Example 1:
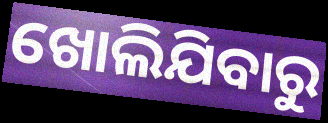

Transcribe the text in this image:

ଖୋଲିଯିବାରୁ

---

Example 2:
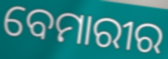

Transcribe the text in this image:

ବେମାରୀର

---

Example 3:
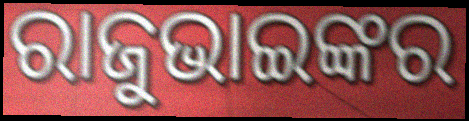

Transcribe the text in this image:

ରାଜୁଭାଇଙ୍କର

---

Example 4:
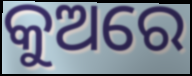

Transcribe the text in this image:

କୁଅରେ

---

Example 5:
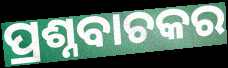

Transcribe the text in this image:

ପ୍ରଶ୍ନବାଚକର